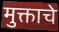
मुक्ताचे